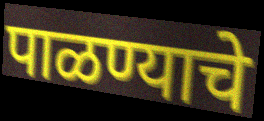
पाळण्याचे